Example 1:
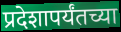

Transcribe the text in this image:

प्रदेशापर्यंतच्या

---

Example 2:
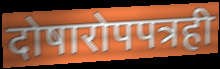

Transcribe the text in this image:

दोषारोपपत्रही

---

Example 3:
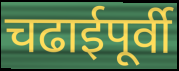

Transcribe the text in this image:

चढाईपूर्वी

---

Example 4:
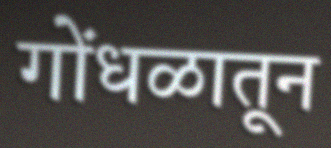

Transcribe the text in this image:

गोंधळातून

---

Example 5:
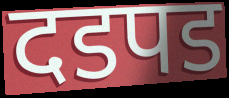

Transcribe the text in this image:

दडपड